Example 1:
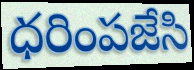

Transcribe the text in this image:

ధరింపజేసి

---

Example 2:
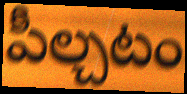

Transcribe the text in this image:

పీల్చటం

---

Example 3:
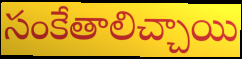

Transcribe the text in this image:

సంకేతాలిచ్చాయి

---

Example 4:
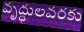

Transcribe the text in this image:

వృద్ధులవరకు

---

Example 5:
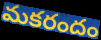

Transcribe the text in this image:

మకరందం